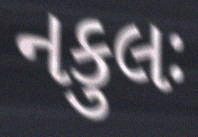
નકુલઃ